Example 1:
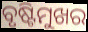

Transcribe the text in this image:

ବୃଷ୍ଟିମୁଖର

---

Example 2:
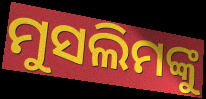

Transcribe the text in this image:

ମୁସଲିମଙ୍କୁ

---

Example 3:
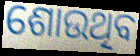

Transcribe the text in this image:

ଶୋଉଥିବ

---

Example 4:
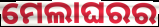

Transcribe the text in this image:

ମେଲାଘରର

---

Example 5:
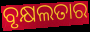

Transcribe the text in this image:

ବୃକ୍ଷଲତାର